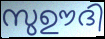
സുഊദി